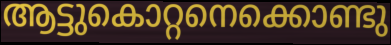
ആട്ടുകൊറ്റനെക്കൊണ്ടു